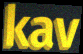
kav